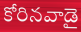
కోరినవాడై